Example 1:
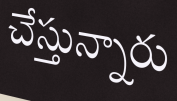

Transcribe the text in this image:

చేస్తున్నారు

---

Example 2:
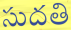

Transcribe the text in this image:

సుదతి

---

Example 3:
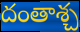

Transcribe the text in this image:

దంతాశ్చ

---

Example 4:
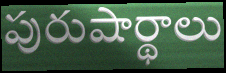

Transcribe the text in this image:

పురుషార్థాలు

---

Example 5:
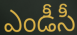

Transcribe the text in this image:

ఎండీసీ